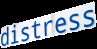
distress